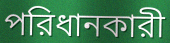
পরিধানকারী